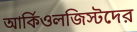
আর্কিওলজিস্টদের